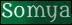
Somya